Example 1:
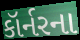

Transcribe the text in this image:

કૉર્નરના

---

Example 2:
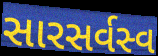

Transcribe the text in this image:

સારસર્વસ્વ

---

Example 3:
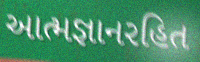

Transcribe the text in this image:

આત્મજ્ઞાનરહિત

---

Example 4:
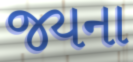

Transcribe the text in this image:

જ્યના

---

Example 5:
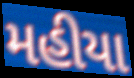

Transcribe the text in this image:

મહીયા